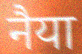
नैया